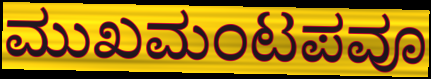
ಮುಖಮಂಟಪವೂ